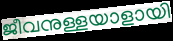
ജീവനുള്ളയാളായി